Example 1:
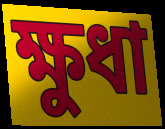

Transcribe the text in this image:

ক্ষুধা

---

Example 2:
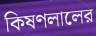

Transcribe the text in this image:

কিষণলালের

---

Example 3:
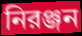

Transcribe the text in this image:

নিরঞ্জন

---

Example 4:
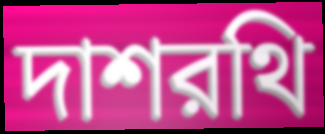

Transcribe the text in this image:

দাশরথি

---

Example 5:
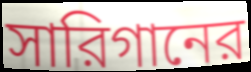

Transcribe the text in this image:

সারিগানের